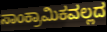
ಸಾಂಕ್ರಾಮಿಕವಲ್ಲದ